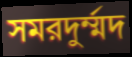
সমরদুর্ম্মদ